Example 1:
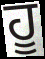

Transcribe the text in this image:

ਹੂ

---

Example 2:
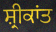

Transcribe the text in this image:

ਸ਼੍ਰੀਕਾਂਤ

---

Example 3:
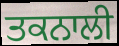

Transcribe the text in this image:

ਤਕਨਾਲੀ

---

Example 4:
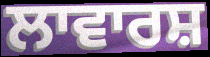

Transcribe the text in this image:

ਲਾਵਾਰਸ਼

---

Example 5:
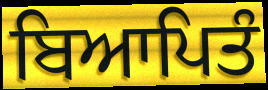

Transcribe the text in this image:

ਬਿਆਪਿਤੰ